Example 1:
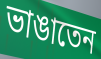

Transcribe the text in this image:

ভাঙাতেন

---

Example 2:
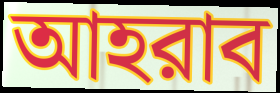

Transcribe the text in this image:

আহরাব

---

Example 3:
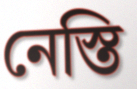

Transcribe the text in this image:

নেস্তি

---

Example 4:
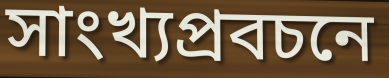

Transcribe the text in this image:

সাংখ্যপ্রবচনে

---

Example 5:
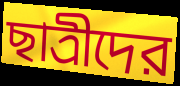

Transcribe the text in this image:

ছাত্রীদের